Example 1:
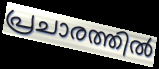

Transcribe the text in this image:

പ്രചാരത്തിൽ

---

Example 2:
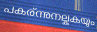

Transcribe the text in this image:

പകര്ന്നുനല്കുകയും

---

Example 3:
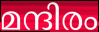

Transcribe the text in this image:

മന്ദിരം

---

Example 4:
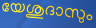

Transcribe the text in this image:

യേശുദാസും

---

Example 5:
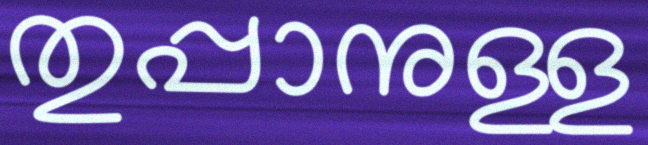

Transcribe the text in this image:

തുപ്പാനുള്ള